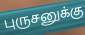
புருசனுக்கு